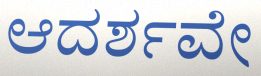
ಆದರ್ಶವೇ